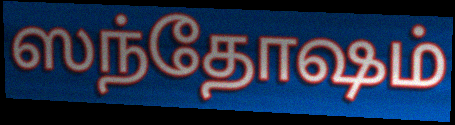
ஸந்தோஷம்